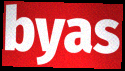
byas